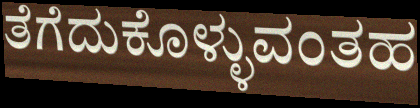
ತೆಗೆದುಕೊಳ್ಳುವಂತಹ